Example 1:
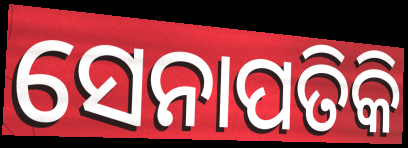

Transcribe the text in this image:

ସେନାପତିକି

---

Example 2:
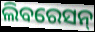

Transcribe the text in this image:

ଲିବରେସନ୍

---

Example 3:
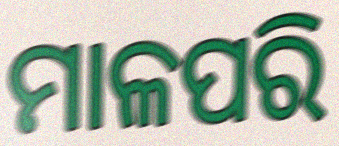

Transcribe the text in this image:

ମାଳପରି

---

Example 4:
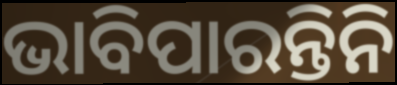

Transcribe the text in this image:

ଭାବିପାରନ୍ତିନି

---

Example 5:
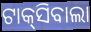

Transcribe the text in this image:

ଟାକ୍‌ସିବାଲା